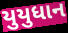
યુયુધાન